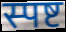
स्पष्ट